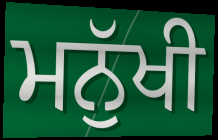
ਮਨੁੱਖੀ